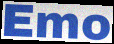
Emo